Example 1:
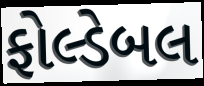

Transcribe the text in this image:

ફોલ્ડેબલ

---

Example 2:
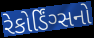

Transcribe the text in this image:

રેકોર્ડિંગ્સનો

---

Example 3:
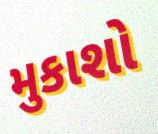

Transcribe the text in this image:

મુકાશો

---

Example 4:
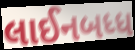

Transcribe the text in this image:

લાઈનબધ્ધ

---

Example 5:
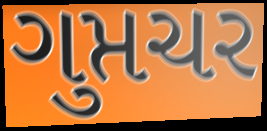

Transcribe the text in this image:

ગુપ્તચર